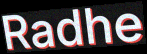
Radhe